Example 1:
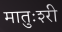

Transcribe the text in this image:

मातुःश्री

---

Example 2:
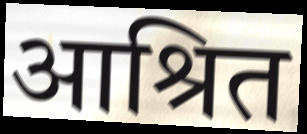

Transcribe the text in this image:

आश्रित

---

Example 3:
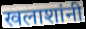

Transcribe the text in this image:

खलाशांनी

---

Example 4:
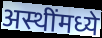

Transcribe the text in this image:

अस्थींमध्ये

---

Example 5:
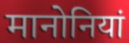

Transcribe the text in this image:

मानोनियां